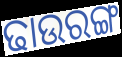
ଢାଉରଙ୍ଗ